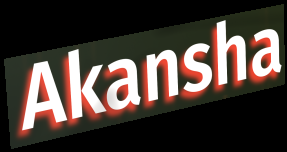
Akansha